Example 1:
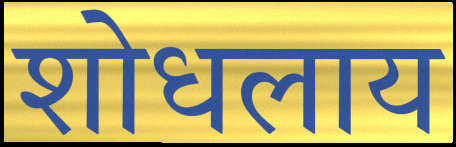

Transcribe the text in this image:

शोधलाय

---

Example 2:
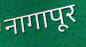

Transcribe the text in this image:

नागापूर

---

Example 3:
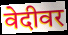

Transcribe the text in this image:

वेदीवर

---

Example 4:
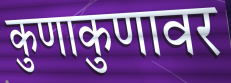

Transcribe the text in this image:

कुणाकुणावर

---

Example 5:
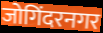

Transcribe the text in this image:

जोगिंदरनगर